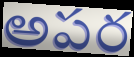
అపర